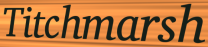
Titchmarsh